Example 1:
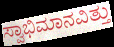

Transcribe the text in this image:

ಸ್ವಾಭಿಮಾನವಿತ್ತು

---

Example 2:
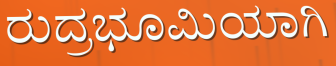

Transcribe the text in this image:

ರುದ್ರಭೂಮಿಯಾಗಿ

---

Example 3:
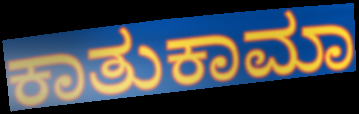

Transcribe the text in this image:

ಕಾತುಕಾಮಾ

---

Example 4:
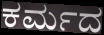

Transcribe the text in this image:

ಕರ್ಮದ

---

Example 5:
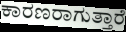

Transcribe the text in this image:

ಕಾರಣರಾಗುತ್ತಾರೆ